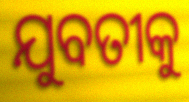
ଯୁବତୀକୁ